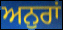
ਅਨੁਰਾਂ